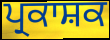
ਪ੍ਰਕਾਸ਼ਕ